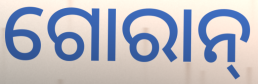
ଗୋରାନ୍